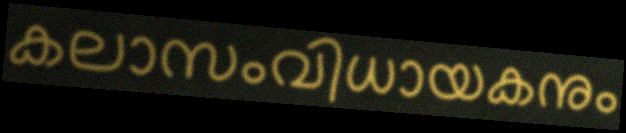
കലാസംവിധായകനും